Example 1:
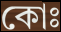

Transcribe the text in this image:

কোঃ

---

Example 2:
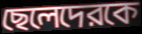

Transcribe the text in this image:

ছেলেদেরকে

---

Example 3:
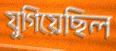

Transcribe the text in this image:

যুগিয়েছিল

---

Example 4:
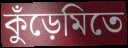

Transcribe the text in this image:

কুঁড়েমিতে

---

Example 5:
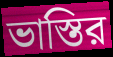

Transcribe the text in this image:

ভাস্তির